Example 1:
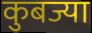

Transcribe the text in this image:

कुबज्या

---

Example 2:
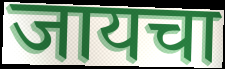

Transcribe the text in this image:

जायचा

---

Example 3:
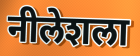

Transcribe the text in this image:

नीलेशला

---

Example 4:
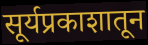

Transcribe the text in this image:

सूर्यप्रकाशातून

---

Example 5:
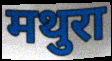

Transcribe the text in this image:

मथुरा